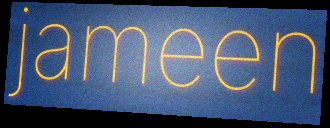
jameen